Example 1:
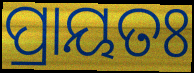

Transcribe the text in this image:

ପ୍ରାୟତଃ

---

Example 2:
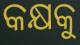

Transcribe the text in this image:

କକ୍ଷକୁ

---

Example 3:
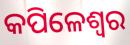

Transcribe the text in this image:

କପିଳେଶ୍ଵର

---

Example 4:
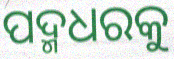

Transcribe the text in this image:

ପଦ୍ମଧରକୁ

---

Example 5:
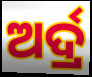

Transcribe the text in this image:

ଅର୍ଦ୍ର